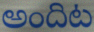
అందిట